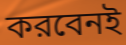
করবেনই